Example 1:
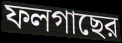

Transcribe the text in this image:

ফলগাছের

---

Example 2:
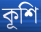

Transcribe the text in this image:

কূশি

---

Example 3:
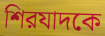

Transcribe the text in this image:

শিরযাদকে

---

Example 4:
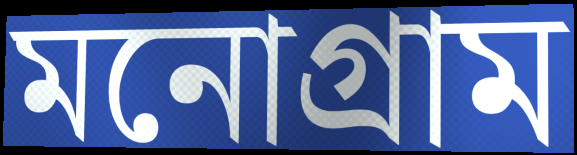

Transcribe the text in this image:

মনোগ্রাম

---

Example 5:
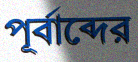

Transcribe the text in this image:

পূর্বাব্দের